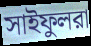
সাইফুলরা